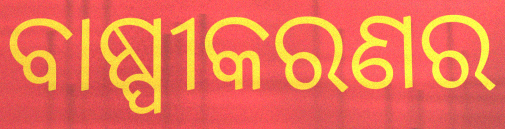
ବାଷ୍ପୀକରଣର